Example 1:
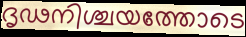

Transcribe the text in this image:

ദൃഢനിശ്ചയത്തോടെ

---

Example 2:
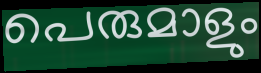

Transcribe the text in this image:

പെരുമാളും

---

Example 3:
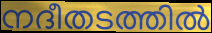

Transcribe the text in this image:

നദീതടത്തിൽ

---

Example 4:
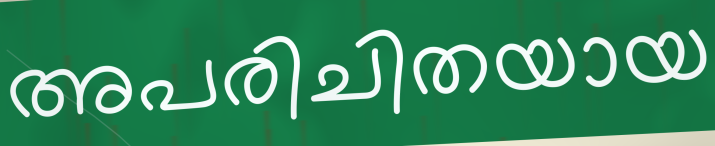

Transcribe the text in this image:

അപരിചിതയായ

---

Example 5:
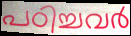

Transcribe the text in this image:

പഠിച്ചവർ